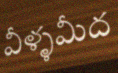
వీళ్ళమీద